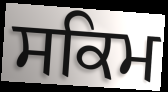
ਸਕਿਮ